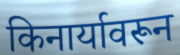
किनार्यावरून